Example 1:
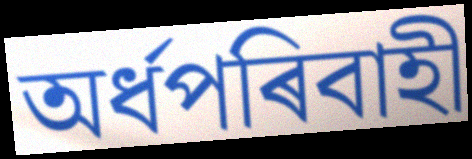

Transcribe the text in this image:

অৰ্ধপৰিবাহী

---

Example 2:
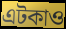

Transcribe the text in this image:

এটকাও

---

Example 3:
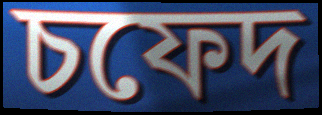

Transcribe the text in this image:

চফেদ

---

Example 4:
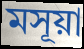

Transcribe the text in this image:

মসূয়া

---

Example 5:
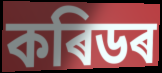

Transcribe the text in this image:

কৰিডৰ